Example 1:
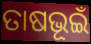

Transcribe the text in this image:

ତାଷଭୂଇଁ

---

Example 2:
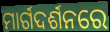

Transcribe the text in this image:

ମାର୍ଗଦର୍ଶନରେ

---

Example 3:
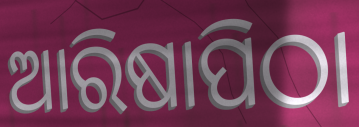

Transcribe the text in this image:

ଆରିଷାପିଠା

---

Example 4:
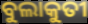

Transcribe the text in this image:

ବୁଲାକୁତୀ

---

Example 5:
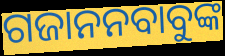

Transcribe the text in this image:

ଗଜାନନବାବୁଙ୍କ